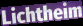
Lichtheim